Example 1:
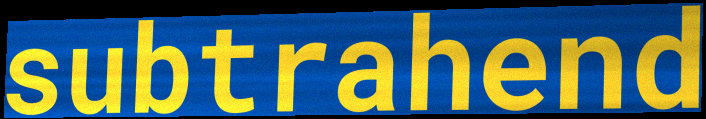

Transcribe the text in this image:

subtrahend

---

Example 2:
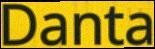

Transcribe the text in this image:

Danta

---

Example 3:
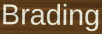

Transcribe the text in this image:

Brading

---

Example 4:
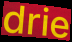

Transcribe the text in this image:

drie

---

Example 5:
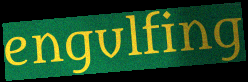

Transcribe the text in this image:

engulfing